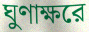
ঘুণাক্ষরে